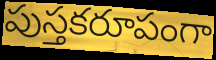
పుస్తకరూపంగా